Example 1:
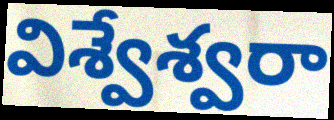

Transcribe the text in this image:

విశ్వేశ్వరా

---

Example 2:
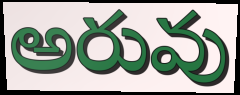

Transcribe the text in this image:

అరువు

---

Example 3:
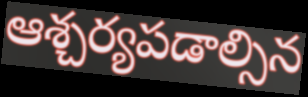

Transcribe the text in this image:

ఆశ్చర్యపడాల్సిన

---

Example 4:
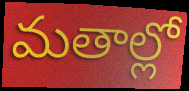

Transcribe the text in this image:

మతాల్లో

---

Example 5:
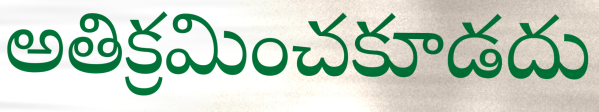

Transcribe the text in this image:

అతిక్రమించకూడదు